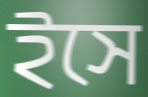
ইসে